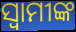
ସ୍ବାମୀଙ୍କ